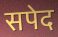
सपेद